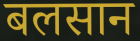
बलसान